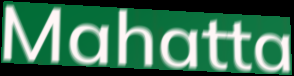
Mahatta